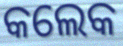
କଲେକ